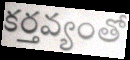
కర్తవ్యంతో